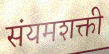
संयमशक्ती